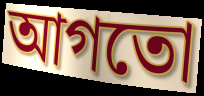
আগতো